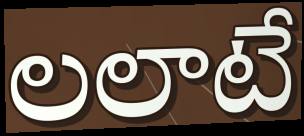
లలాటే